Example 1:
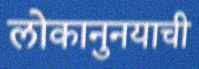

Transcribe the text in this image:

लोकानुनयाची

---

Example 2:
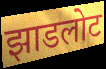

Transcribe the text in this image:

झाडलोट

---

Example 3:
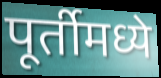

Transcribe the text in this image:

पूर्तीमध्ये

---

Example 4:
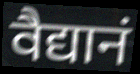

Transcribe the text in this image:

वैद्यानं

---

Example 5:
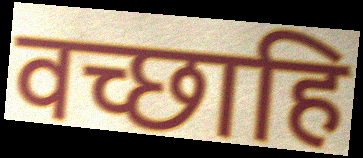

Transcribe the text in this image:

वच्छाहि